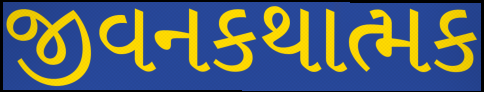
જીવનકથાત્મક